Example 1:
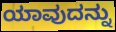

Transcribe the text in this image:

ಯಾವುದನ್ನು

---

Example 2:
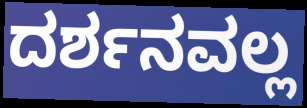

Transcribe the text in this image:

ದರ್ಶನವಲ್ಲ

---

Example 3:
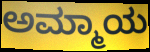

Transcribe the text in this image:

ಅಮ್ಮಾಯ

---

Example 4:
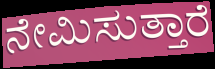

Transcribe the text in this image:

ನೇಮಿಸುತ್ತಾರೆ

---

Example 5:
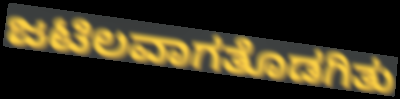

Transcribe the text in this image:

ಜಟಿಲವಾಗತೊಡಗಿತು